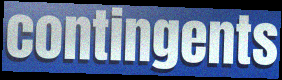
contingents